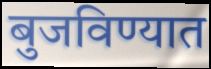
बुजविण्यात